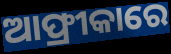
ଆଫ୍ରୀକାରେ